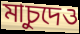
মাচুদেও